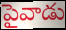
పైవాడు